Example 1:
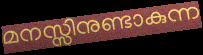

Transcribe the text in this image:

മനസ്സിനുണ്ടാകുന്ന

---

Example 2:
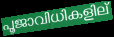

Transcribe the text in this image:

പൂജാവിധികളില്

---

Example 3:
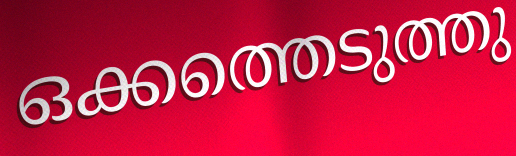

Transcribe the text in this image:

ഒക്കത്തെടുത്തു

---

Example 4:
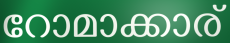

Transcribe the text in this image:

റോമാക്കാര്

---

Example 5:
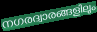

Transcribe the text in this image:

നഗരദ്വാരങ്ങളിലും